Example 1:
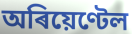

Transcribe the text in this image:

অৰিয়েণ্টেল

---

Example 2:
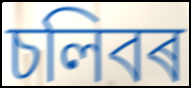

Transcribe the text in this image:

চলিবৰ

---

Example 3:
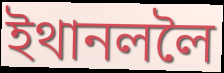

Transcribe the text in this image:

ইথানললৈ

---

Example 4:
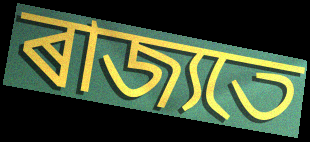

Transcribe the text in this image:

ৰাজ্যতে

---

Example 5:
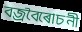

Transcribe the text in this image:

বজ্ৰবৈৰোচনী